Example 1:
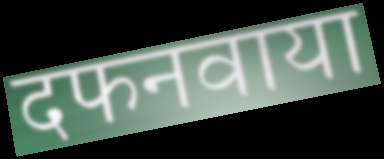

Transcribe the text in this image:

दफनवाया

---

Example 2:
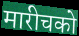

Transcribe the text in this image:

मारीचको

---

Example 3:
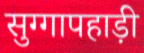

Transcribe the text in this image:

सुग्गापहाड़ी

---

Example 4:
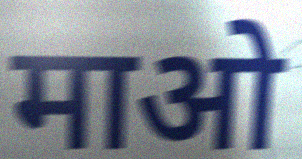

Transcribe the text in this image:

माओ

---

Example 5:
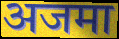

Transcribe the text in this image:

अजमा